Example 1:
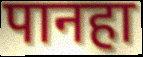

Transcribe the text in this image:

पानहा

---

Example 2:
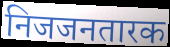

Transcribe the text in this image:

निजजनतारक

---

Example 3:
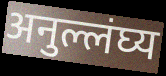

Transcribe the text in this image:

अनुल्लंघ्य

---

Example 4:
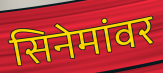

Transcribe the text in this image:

सिनेमांवर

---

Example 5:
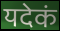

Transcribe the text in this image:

यदेकं